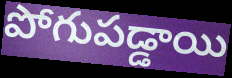
పోగుపడ్డాయి